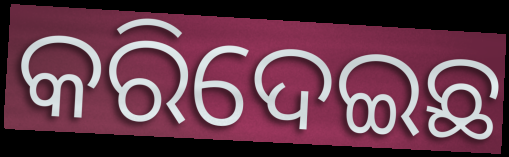
କରିଦେଇଛ